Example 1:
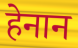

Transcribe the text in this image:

हेनान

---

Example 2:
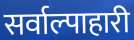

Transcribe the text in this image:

सर्वाल्पाहारी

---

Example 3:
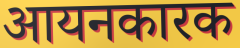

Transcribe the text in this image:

आयनकारक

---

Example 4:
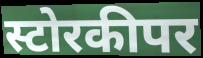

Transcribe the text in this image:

स्टोरकीपर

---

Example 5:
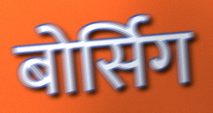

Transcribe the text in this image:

बोर्सिग